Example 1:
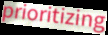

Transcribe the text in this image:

prioritizing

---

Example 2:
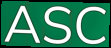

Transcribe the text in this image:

ASC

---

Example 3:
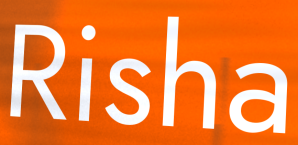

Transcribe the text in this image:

Risha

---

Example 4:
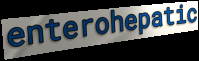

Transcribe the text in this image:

enterohepatic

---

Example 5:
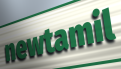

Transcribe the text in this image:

newtamil